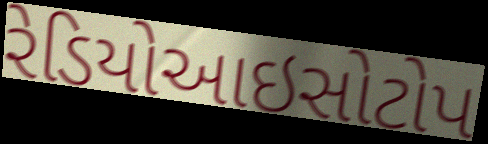
રેડિયોઆઇસોટોપ